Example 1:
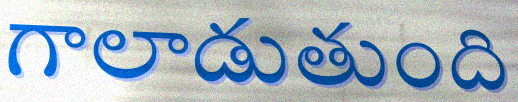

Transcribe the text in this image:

గాలాడుతుంది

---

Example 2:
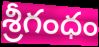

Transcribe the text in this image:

శ్రీగంధం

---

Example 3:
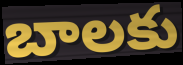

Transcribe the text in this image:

బాలకు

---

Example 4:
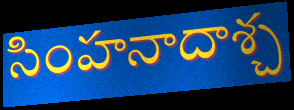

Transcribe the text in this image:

సింహనాదాశ్చ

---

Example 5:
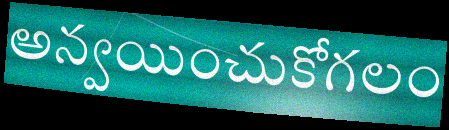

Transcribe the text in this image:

అన్వయించుకోగలం